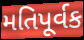
મતિપૂર્વક